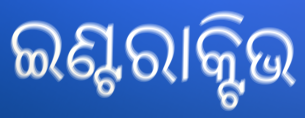
ଇଣ୍ଟରାକ୍ଟିଭ